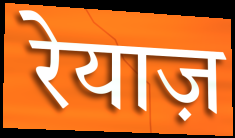
रेयाज़